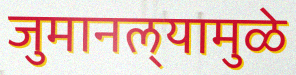
जुमानल्यामुळे